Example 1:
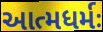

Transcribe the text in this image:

આત્મધર્મઃ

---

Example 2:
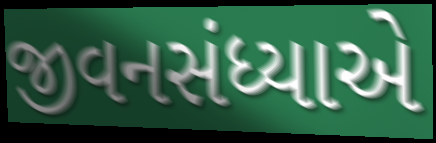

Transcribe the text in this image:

જીવનસંધ્યાએ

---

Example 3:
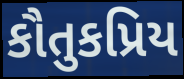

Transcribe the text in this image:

કૌતુકપ્રિય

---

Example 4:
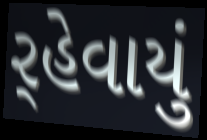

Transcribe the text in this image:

ર્‌હેવાયું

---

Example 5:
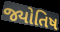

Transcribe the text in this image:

જ્યોતિષ